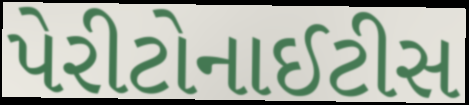
પેરીટોનાઈટીસ